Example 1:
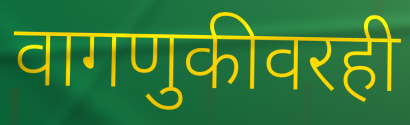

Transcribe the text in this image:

वागणुकीवरही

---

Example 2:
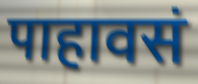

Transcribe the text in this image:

पाहावसं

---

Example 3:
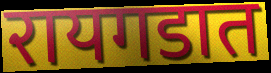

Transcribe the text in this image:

रायगडात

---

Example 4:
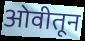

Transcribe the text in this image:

ओवीतून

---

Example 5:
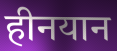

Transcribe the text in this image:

हीनयान